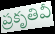
ప్రకృతివీ